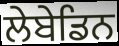
ਲੇਬੇਡਿਨ